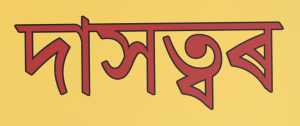
দাসত্বৰ